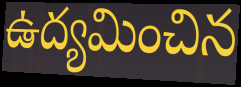
ఉద్యమించిన